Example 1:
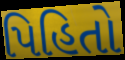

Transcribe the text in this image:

પિહિતો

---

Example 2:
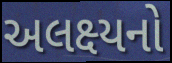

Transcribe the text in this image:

અલક્ષ્યનો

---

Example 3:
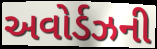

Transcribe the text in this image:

અવોર્ડઝની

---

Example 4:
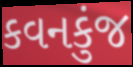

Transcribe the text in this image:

કવનકુંજ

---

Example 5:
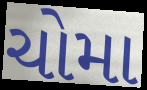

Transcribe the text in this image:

ચોમા